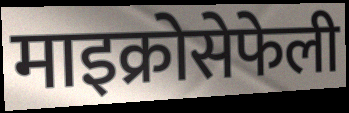
माइक्रोसेफेली